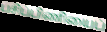
பசிப்பிணியைப்